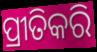
ପ୍ରୀତିକରି